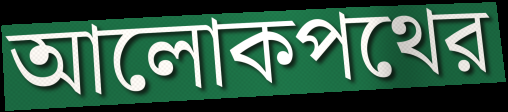
আলোকপথের